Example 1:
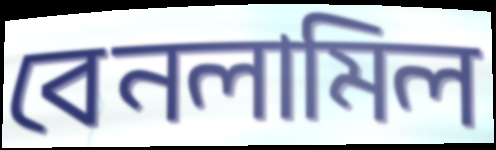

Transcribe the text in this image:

বেনলামিল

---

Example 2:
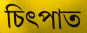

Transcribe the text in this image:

চিৎপাত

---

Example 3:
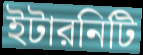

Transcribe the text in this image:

ইটারনিটি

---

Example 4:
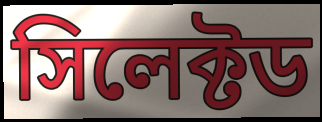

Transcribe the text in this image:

সিলেক্টড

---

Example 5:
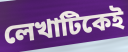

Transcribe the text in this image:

লেখাটিকেই